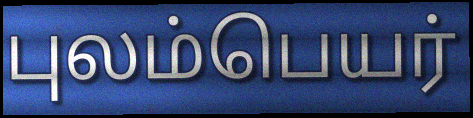
புலம்பெயர்